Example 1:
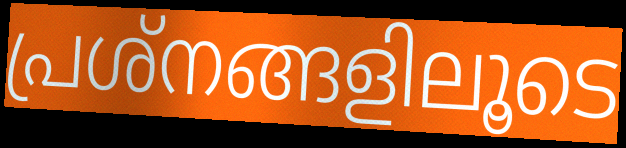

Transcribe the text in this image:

പ്രശ്നങ്ങളിലൂടെ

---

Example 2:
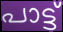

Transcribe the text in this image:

പാട്ട്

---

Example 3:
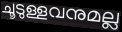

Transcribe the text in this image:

ചൂടുള്ളവനുമല്ല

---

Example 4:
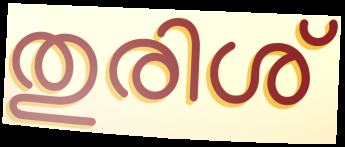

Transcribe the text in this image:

തുരിശ്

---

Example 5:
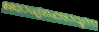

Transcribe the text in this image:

ബോധ്യപ്പെടാവുന്ന